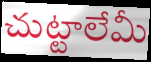
చుట్టాలేమీ